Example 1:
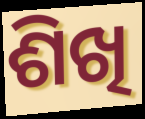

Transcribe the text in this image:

ଶିଖି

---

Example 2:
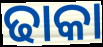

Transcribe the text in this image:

ଢାକା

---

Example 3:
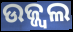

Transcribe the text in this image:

ଉଜ୍ଜ୍ୱଲ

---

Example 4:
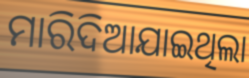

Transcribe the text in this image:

ମାରିଦିଆଯାଇଥିଲା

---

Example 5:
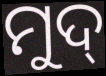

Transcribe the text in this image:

ମୁଦ୍